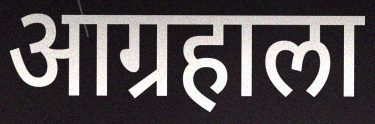
आग्रहाला